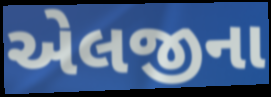
એલજીના